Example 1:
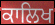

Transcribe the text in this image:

ਕਾਲਿਖ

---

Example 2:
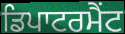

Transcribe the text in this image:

ਡਿਪਾਟਰਮੈਂਟ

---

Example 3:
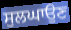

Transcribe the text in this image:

ਸੁਲਘਾਉਣ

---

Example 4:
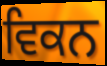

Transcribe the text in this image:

ਵਿਕਨ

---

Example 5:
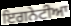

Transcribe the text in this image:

ਇਗਨੇਟੀਆ